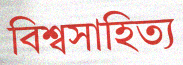
বিশ্বসাহিত্য